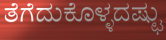
ತೆಗೆದುಕೊಳ್ಳದಷ್ಟು